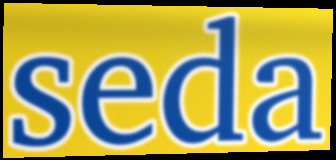
seda